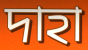
দাহা